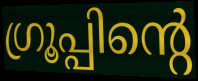
ഗ്രൂപ്പിന്റെ